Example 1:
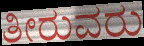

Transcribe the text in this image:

ತೀರುವರು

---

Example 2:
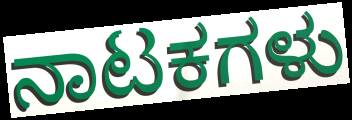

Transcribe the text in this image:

ನಾಟಕಗಳು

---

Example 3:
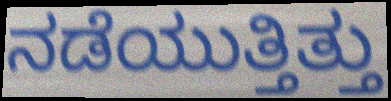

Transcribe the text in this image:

ನಡೆಯುತ್ತಿತ್ತು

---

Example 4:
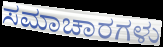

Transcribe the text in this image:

ಸಮಾಚಾರಗಳು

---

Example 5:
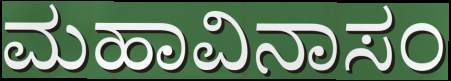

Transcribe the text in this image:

ಮಹಾವಿನಾಸಂ